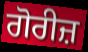
ਗੋਰੀਜ਼